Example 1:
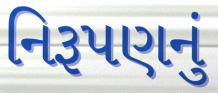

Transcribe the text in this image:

નિરૂપણનું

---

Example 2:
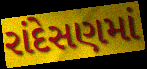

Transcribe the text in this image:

રાંદેસણમાં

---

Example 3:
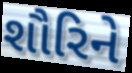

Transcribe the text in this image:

શૌરિને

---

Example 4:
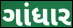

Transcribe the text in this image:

ગાંધાર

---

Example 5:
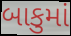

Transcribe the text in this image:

બાકુમાં